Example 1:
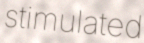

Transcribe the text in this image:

stimulated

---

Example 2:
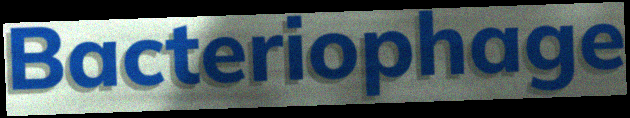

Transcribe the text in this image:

Bacteriophage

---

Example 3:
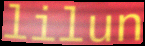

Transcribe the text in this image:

lilun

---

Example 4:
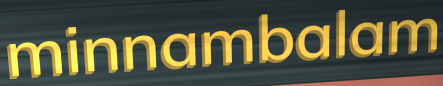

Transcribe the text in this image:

minnambalam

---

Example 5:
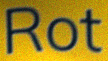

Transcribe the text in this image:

Rot